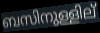
ബസിനുള്ളില്